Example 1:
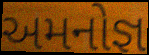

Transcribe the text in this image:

અમનોજ્ઞ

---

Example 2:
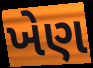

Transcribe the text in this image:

ખેણ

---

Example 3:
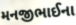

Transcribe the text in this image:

મનજીભાઈના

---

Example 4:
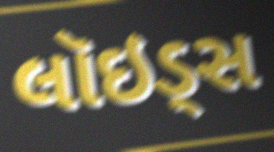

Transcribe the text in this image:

લૉઇડ્સ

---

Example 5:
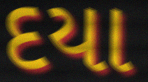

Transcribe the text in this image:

દયા